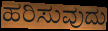
ಹರಿಸುವುದು